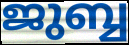
ജുബ്ബ